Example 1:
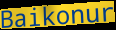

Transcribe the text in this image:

Baikonur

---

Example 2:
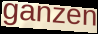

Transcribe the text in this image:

ganzen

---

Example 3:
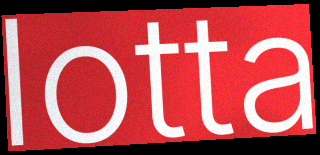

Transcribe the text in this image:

lotta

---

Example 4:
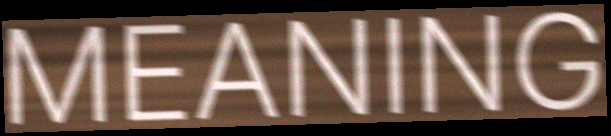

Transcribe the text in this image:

MEANING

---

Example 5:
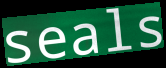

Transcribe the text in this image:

seals